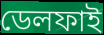
ডেলফাই